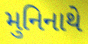
મુનિનાથે